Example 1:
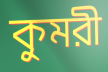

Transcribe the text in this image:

কুমরী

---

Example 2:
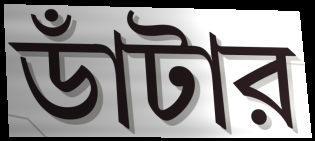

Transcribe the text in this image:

ডাঁটার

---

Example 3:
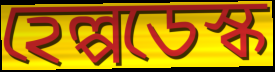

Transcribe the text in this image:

হেল্পডেস্ক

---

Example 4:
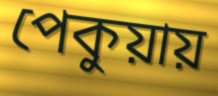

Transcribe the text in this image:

পেকুয়ায়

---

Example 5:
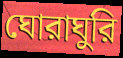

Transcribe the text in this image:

ঘোরাঘুরি